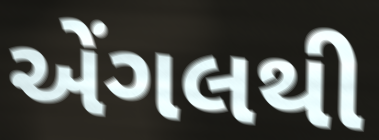
એંગલથી